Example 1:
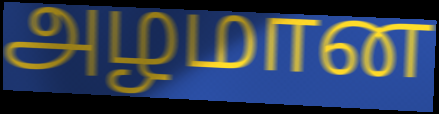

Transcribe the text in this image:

அழமான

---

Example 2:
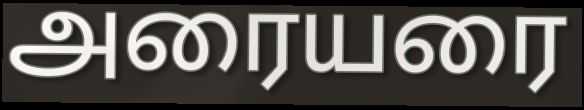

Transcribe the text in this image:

அரையரை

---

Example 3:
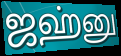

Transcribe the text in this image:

ஜஹ்னு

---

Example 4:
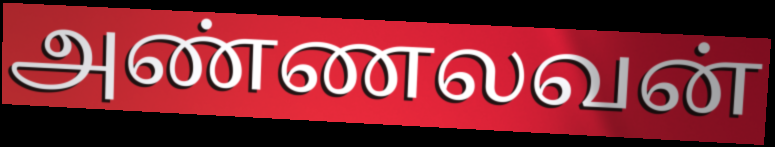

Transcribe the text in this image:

அண்ணலவன்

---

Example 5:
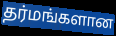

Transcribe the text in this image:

தர்மங்களான